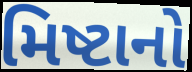
મિષ્ટાનો